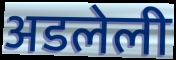
अडलेली